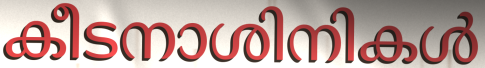
കീടനാശിനികൾ